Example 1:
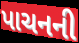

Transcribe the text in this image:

પાચનની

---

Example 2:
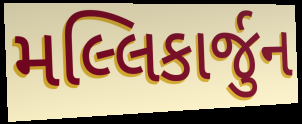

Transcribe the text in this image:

મલ્લિકાર્જુન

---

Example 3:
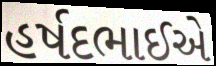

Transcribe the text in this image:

હર્ષદભાઈએ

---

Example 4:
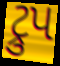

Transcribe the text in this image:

ટ્રુપ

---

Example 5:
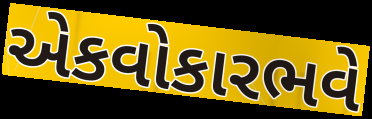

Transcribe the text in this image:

એકવોકારભવે